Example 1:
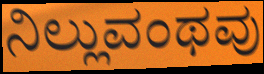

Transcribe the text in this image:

ನಿಲ್ಲುವಂಥವು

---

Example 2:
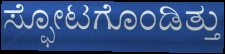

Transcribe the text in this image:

ಸ್ಫೋಟಗೊಂಡಿತ್ತು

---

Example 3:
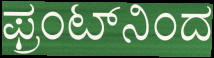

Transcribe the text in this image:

ಫ್ರಂಟ್‌ನಿಂದ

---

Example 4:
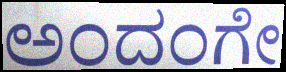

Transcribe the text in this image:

ಅಂದಂಗೇ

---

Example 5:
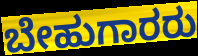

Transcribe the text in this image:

ಬೇಹುಗಾರರು